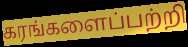
கரங்களைப்பற்றி